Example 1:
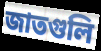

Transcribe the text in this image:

জাতগুলি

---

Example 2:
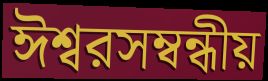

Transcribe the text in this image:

ঈশ্বরসম্বন্ধীয়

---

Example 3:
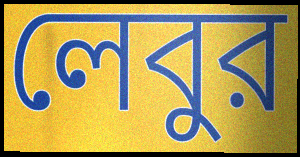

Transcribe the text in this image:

লেবুর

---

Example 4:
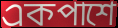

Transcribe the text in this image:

একপাশে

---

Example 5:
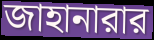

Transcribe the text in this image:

জাহানারার